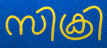
സിക്രി